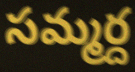
సమ్మర్ద